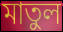
মাতুল